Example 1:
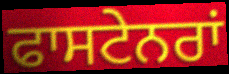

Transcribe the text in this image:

ਫਾਸਟੇਨਰਾਂ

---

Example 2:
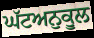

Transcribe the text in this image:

ਘੱਟਅਨੁਕੂਲ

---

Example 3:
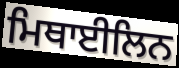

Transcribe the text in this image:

ਮਿਥਾਈਲਿਨ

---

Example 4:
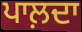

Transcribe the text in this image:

ਪਾਲ਼ਦਾ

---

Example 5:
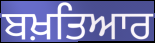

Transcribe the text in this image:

ਬਖ਼ਤਿਆਰ